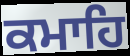
ਕਮਾਹਿ